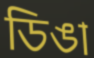
ডিঙা